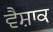
ਵੈਸ਼ਾਕ